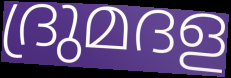
ദ്രുമദള